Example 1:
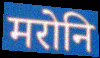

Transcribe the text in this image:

मरोनि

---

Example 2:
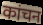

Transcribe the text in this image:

कांचन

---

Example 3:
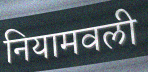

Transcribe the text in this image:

नियामवली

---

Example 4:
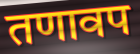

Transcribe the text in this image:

तणावप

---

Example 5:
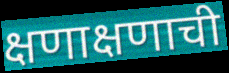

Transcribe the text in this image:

क्षणाक्षणाची